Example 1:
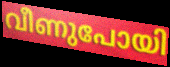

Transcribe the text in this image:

വീണുപോയി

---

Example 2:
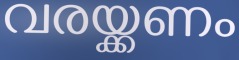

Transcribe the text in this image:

വരയ്ക്കണം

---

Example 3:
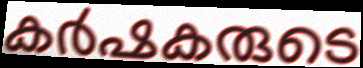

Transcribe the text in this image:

കർഷകരുടെ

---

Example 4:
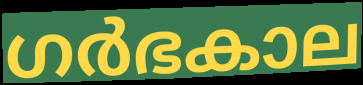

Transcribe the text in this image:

ഗർഭകാല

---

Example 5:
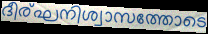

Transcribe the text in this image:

ദീര്ഘനിശ്വാസത്തോടെ